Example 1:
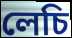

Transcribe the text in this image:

লেচি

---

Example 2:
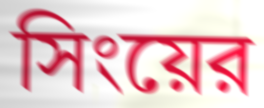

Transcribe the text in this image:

সিংয়ের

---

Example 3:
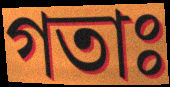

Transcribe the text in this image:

গতাঃ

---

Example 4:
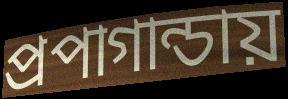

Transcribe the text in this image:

প্রপাগান্ডায়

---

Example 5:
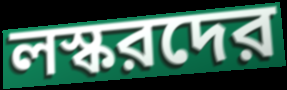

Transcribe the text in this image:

লস্করদের